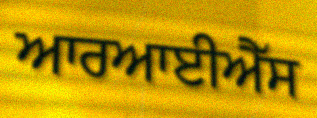
ਆਰਆਈਐੱਸ